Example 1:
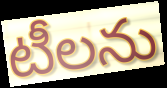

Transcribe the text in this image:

టీలను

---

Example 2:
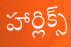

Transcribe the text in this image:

హార్లిక్స్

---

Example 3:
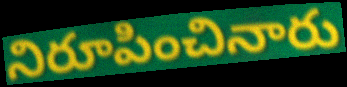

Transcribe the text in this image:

నిరూపించినారు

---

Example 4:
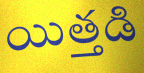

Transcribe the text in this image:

యిత్తడి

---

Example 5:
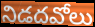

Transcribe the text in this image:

నిడదవోలు